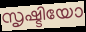
സൃഷ്ടിയോ